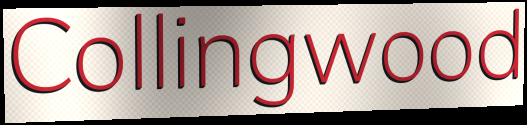
Collingwood